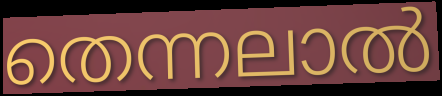
തെന്നലാൽ